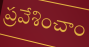
ప్రవేశించాం